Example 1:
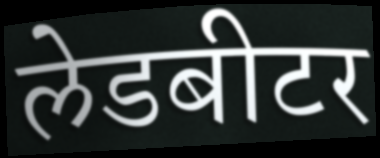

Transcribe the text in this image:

लेडबीटर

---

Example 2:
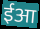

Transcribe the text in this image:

ईआ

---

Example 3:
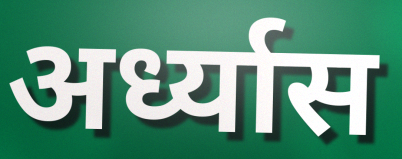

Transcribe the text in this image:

अर्ध्यास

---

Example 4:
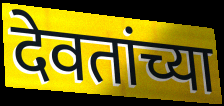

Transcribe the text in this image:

देवतांच्या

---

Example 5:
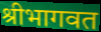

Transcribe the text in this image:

श्रीभागवत